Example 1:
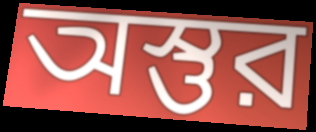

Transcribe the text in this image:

অস্তুর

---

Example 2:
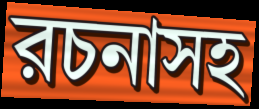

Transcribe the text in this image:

রচনাসহ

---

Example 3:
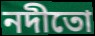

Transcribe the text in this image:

নদীতো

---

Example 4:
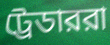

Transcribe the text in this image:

ট্রেডাররা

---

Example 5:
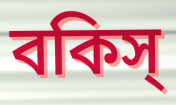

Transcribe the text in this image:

বকিস্